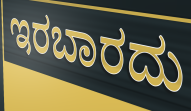
ಇರಬಾರದು